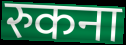
रुकना